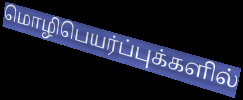
மொழிபெயர்ப்புக்களில்